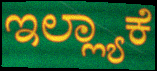
ಇಲ್ಲ್ಯಾಕೆ